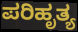
ಪರಿಹೃತ್ಯ